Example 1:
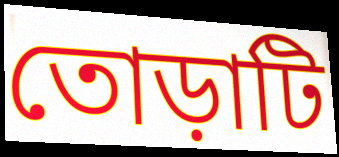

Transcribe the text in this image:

তোড়াটি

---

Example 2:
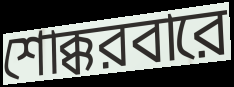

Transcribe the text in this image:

শোক্করবারে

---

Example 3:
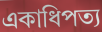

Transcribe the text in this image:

একাধিপত্য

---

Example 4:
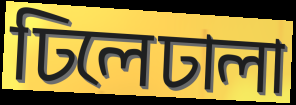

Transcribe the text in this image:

ঢিলেঢালা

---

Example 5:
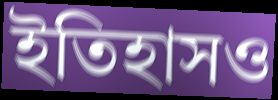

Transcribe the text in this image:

ইতিহাসও